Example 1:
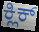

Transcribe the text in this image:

ಕ್ಲಿಕ್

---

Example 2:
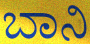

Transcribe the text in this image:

ಬಾನಿ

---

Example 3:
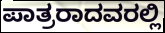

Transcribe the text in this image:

ಪಾತ್ರರಾದವರಲ್ಲಿ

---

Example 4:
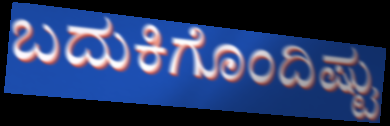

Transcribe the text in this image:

ಬದುಕಿಗೊಂದಿಷ್ಟು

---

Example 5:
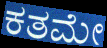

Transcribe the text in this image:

ಕತಮೇ